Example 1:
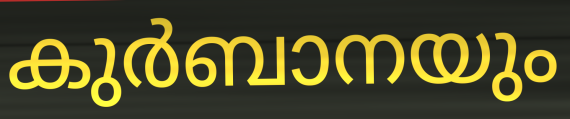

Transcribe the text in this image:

കുർബാനയും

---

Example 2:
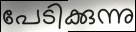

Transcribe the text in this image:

പേടിക്കുന്നു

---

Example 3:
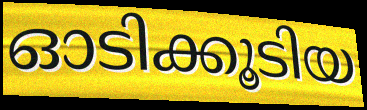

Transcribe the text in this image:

ഓടിക്കൂടിയ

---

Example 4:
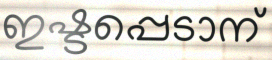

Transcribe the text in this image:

ഇഷ്ടപ്പെടാന്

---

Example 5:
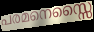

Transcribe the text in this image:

പരമനെസ്സൈ